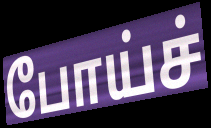
போய்ச்